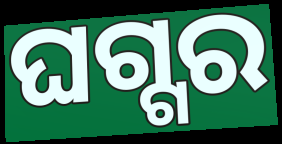
ଘଗ୍ଗର